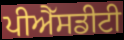
ਪੀਐੱਸਡੀਟੀ